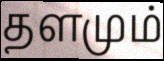
தளமும்